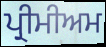
ਪ੍ਰੀਮੀਅਮ